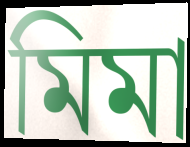
মিমা